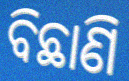
ବିଛାଣି